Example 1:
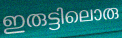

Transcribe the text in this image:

ഇരുട്ടിലൊരു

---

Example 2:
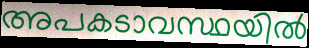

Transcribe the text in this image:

അപകടാവസ്ഥയിൽ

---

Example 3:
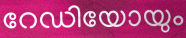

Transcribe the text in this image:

റേഡിയോയും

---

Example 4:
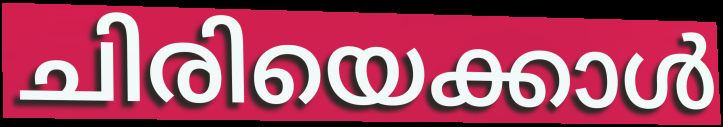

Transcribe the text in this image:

ചിരിയെക്കാൾ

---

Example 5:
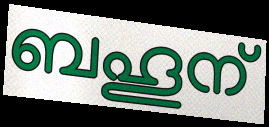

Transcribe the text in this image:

ബഹൂന്